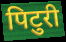
पिटुरी